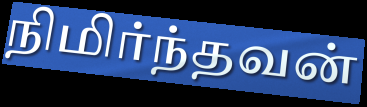
நிமிர்ந்தவன்